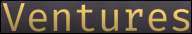
Ventures